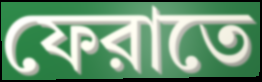
ফেরাতে